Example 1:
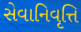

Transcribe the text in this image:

સેવાનિવૃત્તિ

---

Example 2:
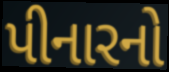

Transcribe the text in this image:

પીનારનો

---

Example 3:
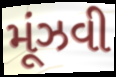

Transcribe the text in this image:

મૂંઝવી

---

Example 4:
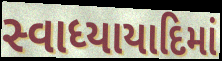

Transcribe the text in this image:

સ્વાધ્યાયાદિમાં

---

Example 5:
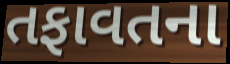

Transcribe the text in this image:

તફાવતના